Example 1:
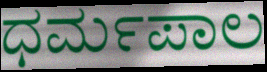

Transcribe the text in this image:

ಧರ್ಮಪಾಲ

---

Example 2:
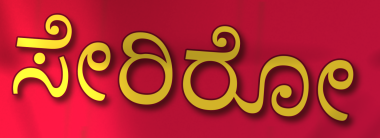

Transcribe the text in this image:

ಸೇರಿರೋ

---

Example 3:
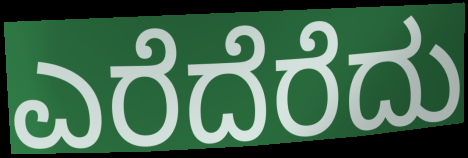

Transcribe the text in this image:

ಎರೆದೆರೆದು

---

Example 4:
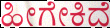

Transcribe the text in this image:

ಹೀಗೇಕಿದೆ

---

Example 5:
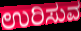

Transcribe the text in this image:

ಉರಿಸುವ